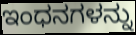
ಇಂಧನಗಳನ್ನು